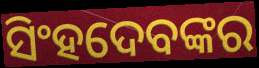
ସିଂହଦେବଙ୍କର